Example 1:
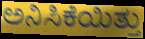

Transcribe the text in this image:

ಅನಿಸಿಕೆಯಿತ್ತು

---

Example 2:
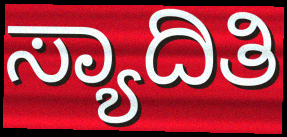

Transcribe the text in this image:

ಸ್ಯಾದಿತಿ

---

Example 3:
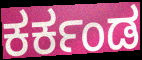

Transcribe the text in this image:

ಕರ್ಕಂಡ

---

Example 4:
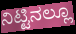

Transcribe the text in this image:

ನಿಟ್ಟಿನಲ್ಲೂ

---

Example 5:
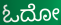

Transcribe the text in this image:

ಓದೋ